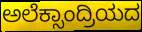
ಅಲೆಕ್ಸಾಂದ್ರಿಯದ